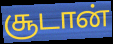
சூடான்